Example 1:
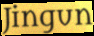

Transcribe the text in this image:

Jingun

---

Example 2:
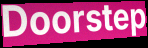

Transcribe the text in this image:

Doorstep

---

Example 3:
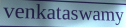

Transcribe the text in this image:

venkataswamy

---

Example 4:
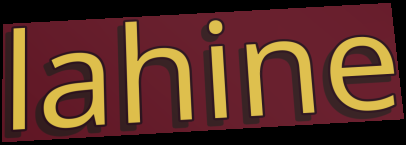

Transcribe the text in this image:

lahine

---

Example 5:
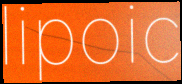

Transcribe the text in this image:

lipoic